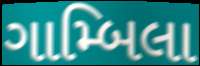
ગામ્બિલા